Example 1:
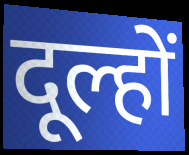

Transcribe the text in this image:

दूल्हों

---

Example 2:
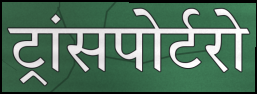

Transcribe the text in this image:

ट्रांसपोर्टरो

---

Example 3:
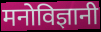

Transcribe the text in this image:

मनोविज्ञानी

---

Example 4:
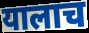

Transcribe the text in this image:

यालाच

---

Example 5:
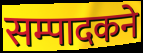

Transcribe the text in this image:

सम्पादकने